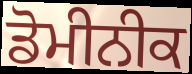
ਡੋਮੀਨੀਕ